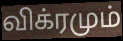
விக்ரமும்